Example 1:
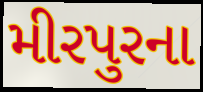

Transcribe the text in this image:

મીરપુરના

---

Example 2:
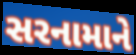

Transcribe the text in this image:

સરનામાને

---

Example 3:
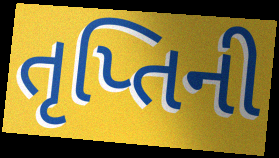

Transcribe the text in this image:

તૃપ્તિની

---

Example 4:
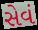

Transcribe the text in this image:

સેવં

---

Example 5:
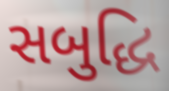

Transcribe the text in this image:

સબુદ્ધિ